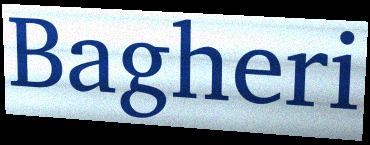
Bagheri